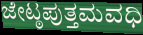
ಜೇಟ್ಠಪುತ್ತಮವಧಿ